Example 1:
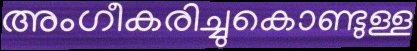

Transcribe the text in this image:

അംഗീകരിച്ചുകൊണ്ടുള്ള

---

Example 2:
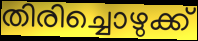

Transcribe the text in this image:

തിരിച്ചൊഴുക്ക്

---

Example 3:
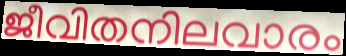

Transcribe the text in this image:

ജീവിതനിലവാരം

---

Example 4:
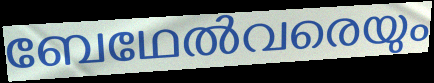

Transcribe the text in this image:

ബേഥേൽവരെയും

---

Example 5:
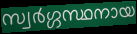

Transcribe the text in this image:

സ്വർഗ്ഗസ്ഥനായ